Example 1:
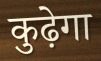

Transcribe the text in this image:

कुढ़ेगा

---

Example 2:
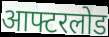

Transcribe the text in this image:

आफ्टरलोड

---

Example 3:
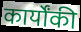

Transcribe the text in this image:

कार्योंकी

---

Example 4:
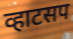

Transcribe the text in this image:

व्हाटसप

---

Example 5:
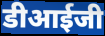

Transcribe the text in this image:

डीआईजी